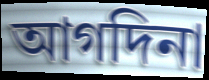
আগদিনা